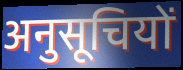
अनुसूचियों